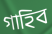
গাহিব